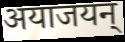
अयाजयन्